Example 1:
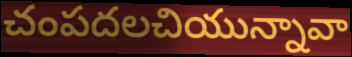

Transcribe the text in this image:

చంపదలచియున్నావా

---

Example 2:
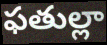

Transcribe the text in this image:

ఫతుల్లా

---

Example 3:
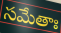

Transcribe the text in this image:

సమేతాః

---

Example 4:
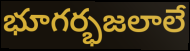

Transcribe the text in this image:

భూగర్భజలాలే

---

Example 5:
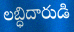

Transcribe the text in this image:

లబ్ధిదారుడి